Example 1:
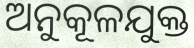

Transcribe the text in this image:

ଅନୁକୂଳଯୁକ୍ତ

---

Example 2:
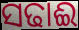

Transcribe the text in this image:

ସଢାଈ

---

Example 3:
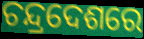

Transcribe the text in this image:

ଚନ୍ଦ୍ରଦେଶରେ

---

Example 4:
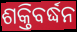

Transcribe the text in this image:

ଶକ୍ତିବର୍ଦ୍ଧନ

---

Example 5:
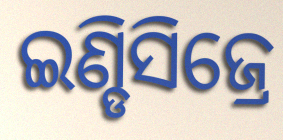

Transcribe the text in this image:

ଇଣ୍ଡିସିଜ୍ରେ